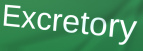
Excretory